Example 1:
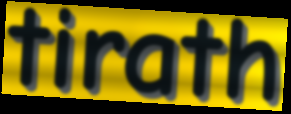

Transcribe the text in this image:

tirath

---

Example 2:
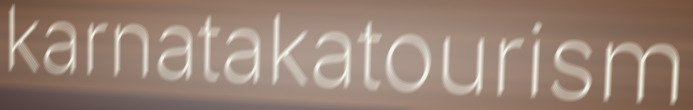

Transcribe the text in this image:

karnatakatourism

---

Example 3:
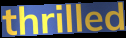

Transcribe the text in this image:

thrilled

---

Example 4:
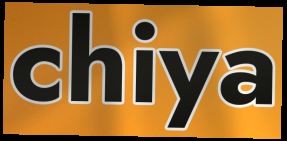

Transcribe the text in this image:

chiya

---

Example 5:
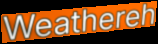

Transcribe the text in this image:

Weathereh